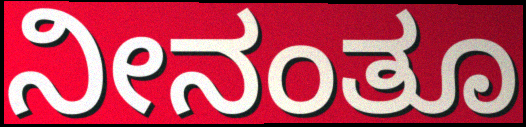
ನೀನಂತೂ